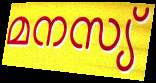
മനസ്യ്